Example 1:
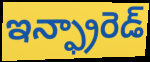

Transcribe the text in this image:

ఇన్ఫ్రారెడ్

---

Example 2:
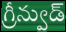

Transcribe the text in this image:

గ్రీన్వుడ్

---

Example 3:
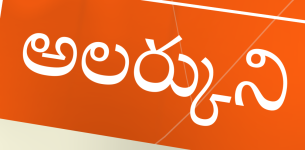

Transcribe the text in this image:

అలర్కుని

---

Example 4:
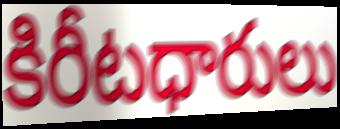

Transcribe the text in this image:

కిరీటధారులు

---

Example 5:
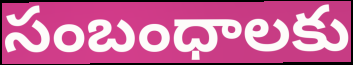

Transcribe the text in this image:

సంబంధాలకు